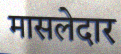
मासलेदार